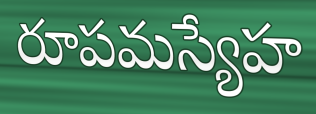
రూపమస్యేహ